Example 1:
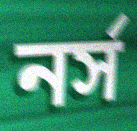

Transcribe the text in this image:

নর্স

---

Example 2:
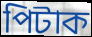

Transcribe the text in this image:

পিটাক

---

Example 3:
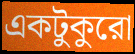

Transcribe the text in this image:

একটুকুরো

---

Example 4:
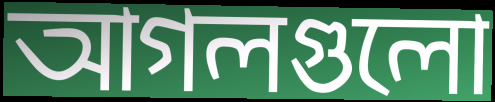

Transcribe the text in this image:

আগলগুলো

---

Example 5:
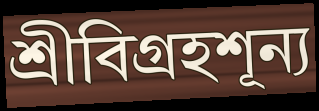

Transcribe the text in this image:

শ্রীবিগ্রহশূন্য